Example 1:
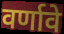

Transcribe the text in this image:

वर्णावे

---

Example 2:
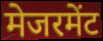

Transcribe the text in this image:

मेजरमेंट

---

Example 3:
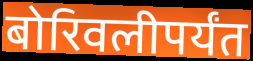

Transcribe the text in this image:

बोरिवलीपर्यंत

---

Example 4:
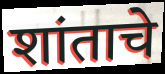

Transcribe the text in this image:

शांताचे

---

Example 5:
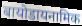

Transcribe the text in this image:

बायोडायनामिक